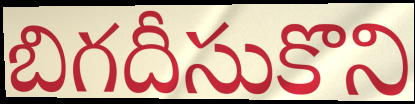
బిగదీసుకొని